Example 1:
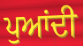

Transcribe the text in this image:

ਪੁਆਂਦੀ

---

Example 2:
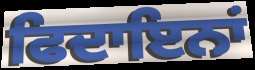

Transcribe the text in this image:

ਫਿਦਾਇਨਾਂ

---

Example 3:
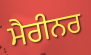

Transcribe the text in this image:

ਮੈਰੀਨਰ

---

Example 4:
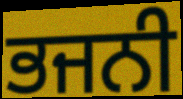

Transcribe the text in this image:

ਭਜਨੀ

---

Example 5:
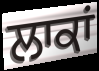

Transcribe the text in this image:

ਲਾਕਾਂ